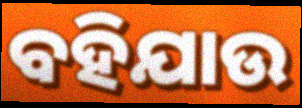
ବହିଯାଉ